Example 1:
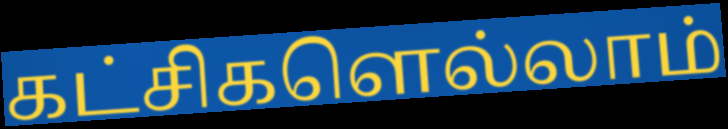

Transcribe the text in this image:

கட்சிகளெல்லாம்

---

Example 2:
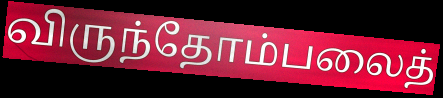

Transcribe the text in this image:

விருந்தோம்பலைத்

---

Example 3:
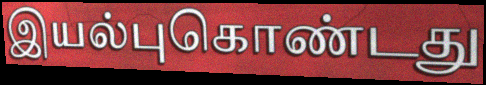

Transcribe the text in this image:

இயல்புகொண்டது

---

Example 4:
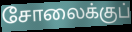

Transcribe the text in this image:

சோலைக்குப்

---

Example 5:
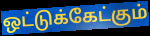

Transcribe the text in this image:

ஒட்டுக்கேட்கும்